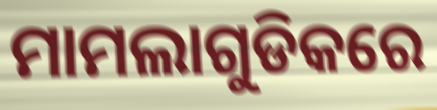
ମାମଲାଗୁଡିକରେ